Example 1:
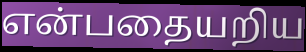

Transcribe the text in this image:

என்பதையறிய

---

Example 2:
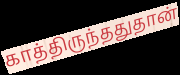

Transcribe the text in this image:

காத்திருந்ததுதான்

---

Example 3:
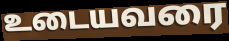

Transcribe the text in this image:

உடையவரை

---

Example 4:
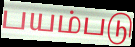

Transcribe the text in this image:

பயம்படு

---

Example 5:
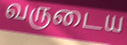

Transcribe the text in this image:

வருடைய